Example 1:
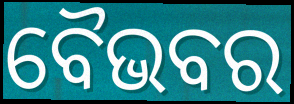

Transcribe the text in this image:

ବୈଭବର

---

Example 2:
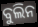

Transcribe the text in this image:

ବୁଲିନ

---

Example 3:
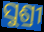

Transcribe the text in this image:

ସୁଶ୍ରୀ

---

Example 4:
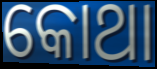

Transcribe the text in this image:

କୋଥା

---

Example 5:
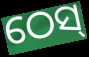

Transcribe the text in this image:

ଠେସ୍